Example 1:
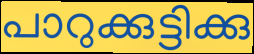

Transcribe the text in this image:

പാറുക്കുട്ടിക്കു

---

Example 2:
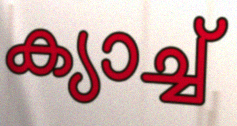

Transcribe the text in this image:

ക്യാച്ച്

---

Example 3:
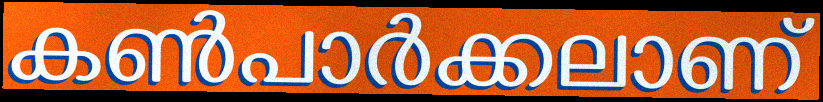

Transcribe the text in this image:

കൺപാർക്കലാണ്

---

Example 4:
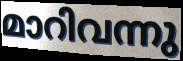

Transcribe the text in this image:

മാറിവന്നു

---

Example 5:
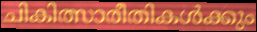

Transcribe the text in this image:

ചികിത്സാരീതികൾക്കും